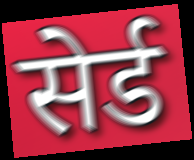
सेर्ड